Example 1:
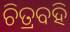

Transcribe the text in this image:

ଚିତ୍ରବହି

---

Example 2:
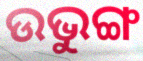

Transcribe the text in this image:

ଉଭୁଙ୍ଗ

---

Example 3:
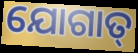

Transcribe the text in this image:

ଯୋଗାତ୍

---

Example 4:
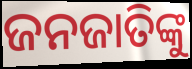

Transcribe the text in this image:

ଜନଜାତିଙ୍କୁ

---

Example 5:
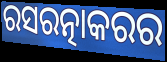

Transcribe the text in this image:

ରସରତ୍ନାକରର